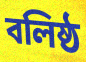
বলিষ্ঠ